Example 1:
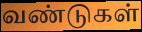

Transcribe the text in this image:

வண்டுகள்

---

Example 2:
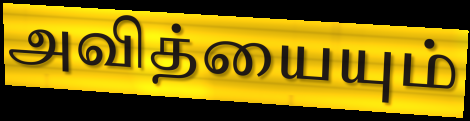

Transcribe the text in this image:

அவித்யையும்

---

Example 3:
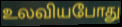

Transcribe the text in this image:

உலவியபோது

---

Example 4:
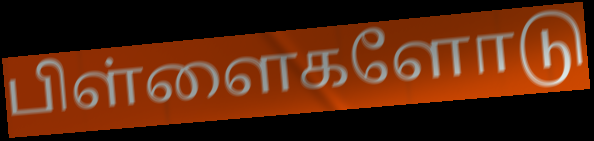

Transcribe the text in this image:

பிள்ளைகளோடு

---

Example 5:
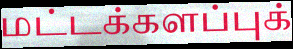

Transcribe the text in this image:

மட்டக்களப்புக்